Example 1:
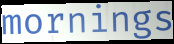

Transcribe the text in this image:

mornings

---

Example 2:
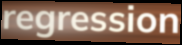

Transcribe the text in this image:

regression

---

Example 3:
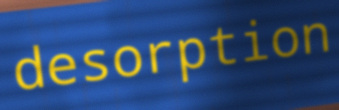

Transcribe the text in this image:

desorption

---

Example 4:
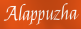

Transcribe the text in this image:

Alappuzha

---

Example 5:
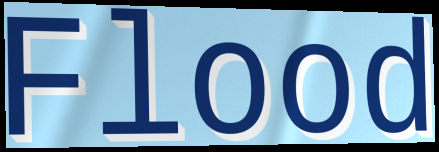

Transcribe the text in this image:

Flood